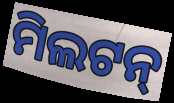
ମିଲଟନ୍